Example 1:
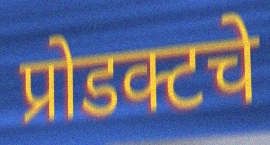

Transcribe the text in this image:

प्रोडक्टचे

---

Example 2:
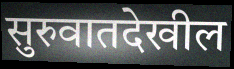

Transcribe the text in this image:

सुरुवातदेखील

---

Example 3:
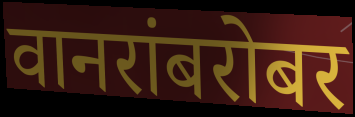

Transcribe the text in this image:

वानरांबरोबर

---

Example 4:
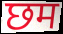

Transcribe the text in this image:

छम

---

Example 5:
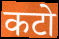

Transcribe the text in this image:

कटो